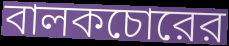
বালকচোরের